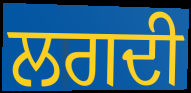
ਲਗਦੀ